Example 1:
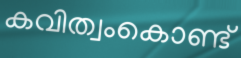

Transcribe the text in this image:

കവിത്വംകൊണ്ട്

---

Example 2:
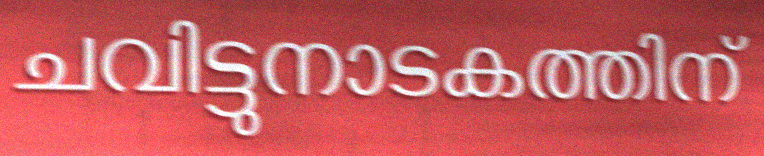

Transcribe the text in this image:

ചവിട്ടുനാടകത്തിന്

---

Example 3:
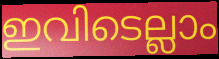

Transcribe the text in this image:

ഇവിടെല്ലാം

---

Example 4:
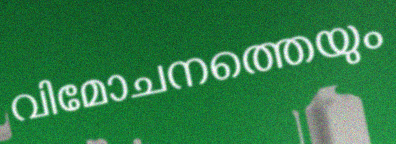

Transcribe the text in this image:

വിമോചനത്തെയും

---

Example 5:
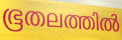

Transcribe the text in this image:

ഭൂതലത്തിൽ